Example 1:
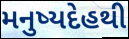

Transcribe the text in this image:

મનુષ્યદેહથી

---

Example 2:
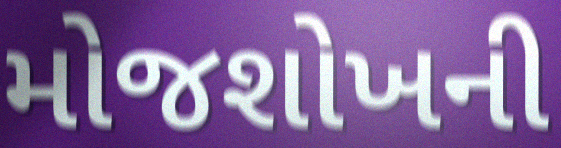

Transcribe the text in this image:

મોજશોખની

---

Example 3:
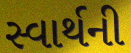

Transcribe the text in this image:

સ્વાર્થની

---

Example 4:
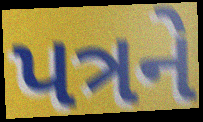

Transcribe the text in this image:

પત્રને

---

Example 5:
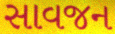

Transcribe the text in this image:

સાવજન